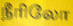
நீரிலோ